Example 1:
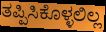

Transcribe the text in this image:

ತಪ್ಪಿಸಿಕೊಳ್ಳಲಿಲ್ಲ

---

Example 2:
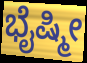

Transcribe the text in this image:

ಭೈಷ್ಮೀ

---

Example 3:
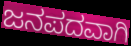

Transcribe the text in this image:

ಜನಪದವಾಗಿ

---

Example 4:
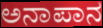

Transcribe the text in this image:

ಅನಾಪಾನ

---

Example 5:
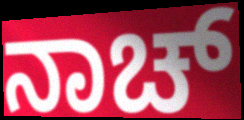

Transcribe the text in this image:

ನಾಚ್